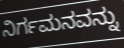
ನಿರ್ಗಮನವನ್ನು